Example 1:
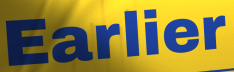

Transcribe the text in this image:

Earlier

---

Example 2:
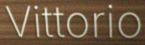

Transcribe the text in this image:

Vittorio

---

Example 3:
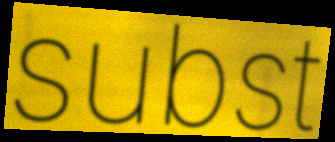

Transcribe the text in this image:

subst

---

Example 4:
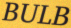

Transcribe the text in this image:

BULB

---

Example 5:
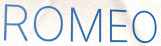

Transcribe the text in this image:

ROMEO